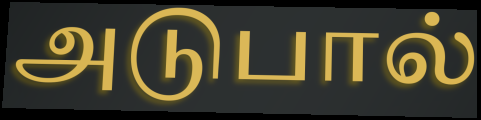
அடுபால்